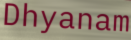
Dhyanam